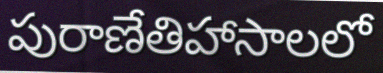
పురాణేతిహాసాలలో